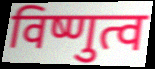
विष्णुत्व